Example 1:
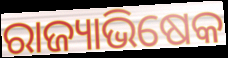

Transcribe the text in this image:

ରାଜ୍ୟାଭିଷେକ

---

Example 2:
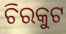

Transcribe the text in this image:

ଚିରକୁଟ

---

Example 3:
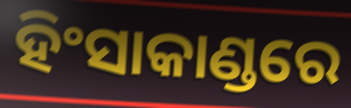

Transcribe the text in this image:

ହିଂସାକାଣ୍ଡରେ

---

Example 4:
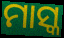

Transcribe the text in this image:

ମାସ୍କ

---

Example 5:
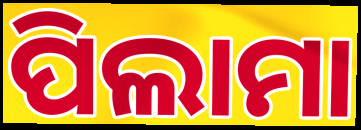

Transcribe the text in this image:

ପିଲାମା